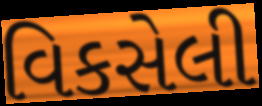
વિકસેલી